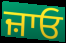
ਜ਼ਾਓ